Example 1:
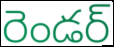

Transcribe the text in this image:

రెండర్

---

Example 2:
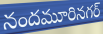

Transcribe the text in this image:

నందమూరినగర్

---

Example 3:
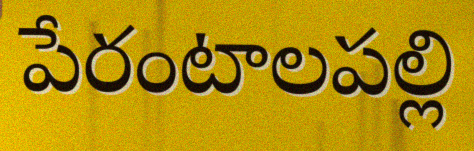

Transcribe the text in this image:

పేరంటాలపల్లి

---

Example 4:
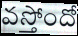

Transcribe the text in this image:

వస్తోందో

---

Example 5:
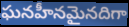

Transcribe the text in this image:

ఘనహీనమైనదిగా